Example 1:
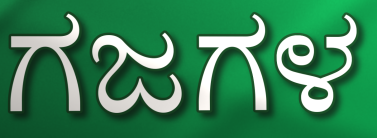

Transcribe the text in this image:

ಗಜಗಳ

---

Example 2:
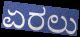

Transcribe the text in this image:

ಏರಲು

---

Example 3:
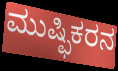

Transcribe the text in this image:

ಮುಷ್ಫಿಕರನ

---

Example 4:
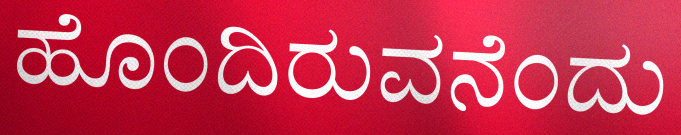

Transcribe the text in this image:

ಹೊಂದಿರುವನೆಂದು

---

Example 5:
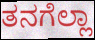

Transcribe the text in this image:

ತನಗೆಲ್ಲಾ